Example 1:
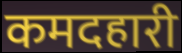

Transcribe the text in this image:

कमदहारी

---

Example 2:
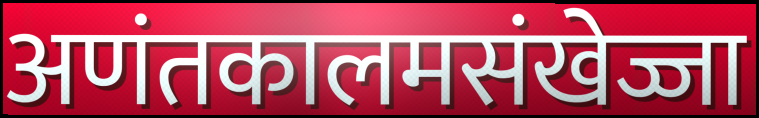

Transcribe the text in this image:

अणंतकालमसंखेज्जा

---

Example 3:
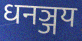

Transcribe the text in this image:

धनञ्जय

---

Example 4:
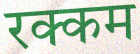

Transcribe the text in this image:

रक्कम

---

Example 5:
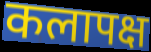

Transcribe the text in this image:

कलापक्ष